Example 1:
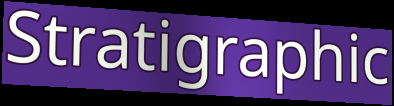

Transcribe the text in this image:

Stratigraphic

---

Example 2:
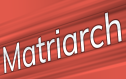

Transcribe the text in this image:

Matriarch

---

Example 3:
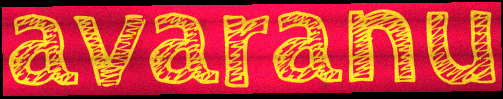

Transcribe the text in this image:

avaranu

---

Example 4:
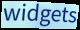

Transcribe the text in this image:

widgets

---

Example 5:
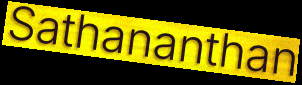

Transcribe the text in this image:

Sathananthan